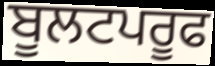
ਬੂਲਟਪਰੂਫ